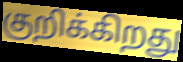
குறிக்கிறது